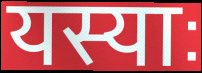
यस्याः